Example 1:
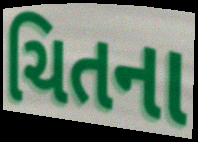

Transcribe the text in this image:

ચિતના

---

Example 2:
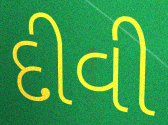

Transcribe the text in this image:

દીવી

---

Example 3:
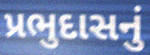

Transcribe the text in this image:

પ્રભુદાસનું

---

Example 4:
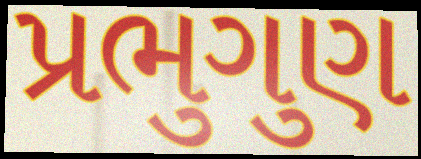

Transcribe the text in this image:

પ્રભુગુણ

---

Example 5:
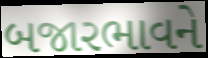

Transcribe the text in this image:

બજારભાવને